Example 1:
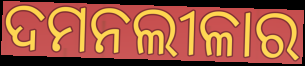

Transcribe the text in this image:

ଦମନଲୀଳାର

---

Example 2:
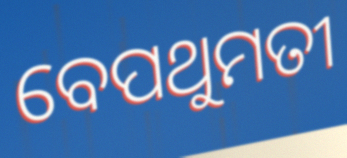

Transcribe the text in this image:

ବେପଥୁମତୀ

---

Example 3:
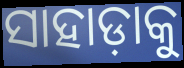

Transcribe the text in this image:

ସାହାଡ଼ାକୁ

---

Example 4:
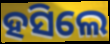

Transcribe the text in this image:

ହସିଲେ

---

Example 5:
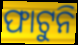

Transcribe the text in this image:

ଫାଟୁନି